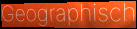
Geographisch